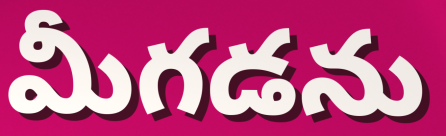
మీగడను